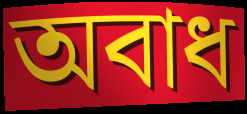
অবাধ